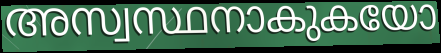
അസ്വസ്ഥനാകുകയോ